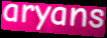
aryans